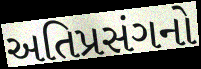
અતિપ્રસંગનો